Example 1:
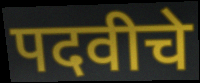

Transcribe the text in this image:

पदवीचे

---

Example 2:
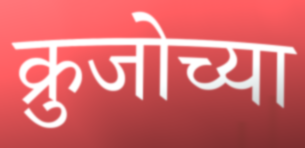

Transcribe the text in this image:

क्रुजोच्या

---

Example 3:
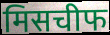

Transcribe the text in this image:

मिसचीफ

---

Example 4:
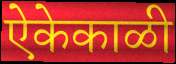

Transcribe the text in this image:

ऐकेकाळी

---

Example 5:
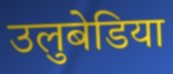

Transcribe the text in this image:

उलुबेडिया